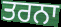
ਤਰਨਾ